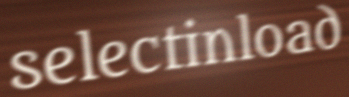
selectinload